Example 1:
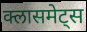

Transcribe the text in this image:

क्लासमेट्स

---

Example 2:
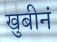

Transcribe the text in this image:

खुबीनं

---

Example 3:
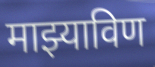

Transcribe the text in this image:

माझ्याविण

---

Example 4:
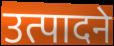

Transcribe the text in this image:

उत्पादने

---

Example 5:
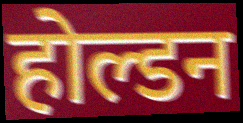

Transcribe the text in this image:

होल्डन